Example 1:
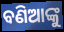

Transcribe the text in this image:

ବଣିଆଙ୍କୁ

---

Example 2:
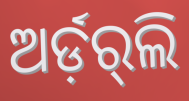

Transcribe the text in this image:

ଅର୍ଡ଼ର୍‌ଲି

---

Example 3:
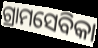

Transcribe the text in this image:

ଗ୍ରାମସେବିକା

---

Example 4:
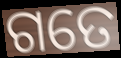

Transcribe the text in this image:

ଗତେ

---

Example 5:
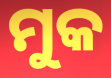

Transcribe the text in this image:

ମୁକ